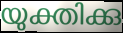
യുക്തിക്കു